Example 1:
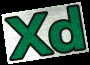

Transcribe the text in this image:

Xd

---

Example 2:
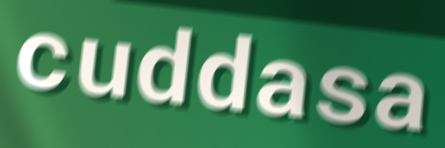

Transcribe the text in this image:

cuddasa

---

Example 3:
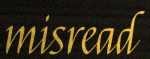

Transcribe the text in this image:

misread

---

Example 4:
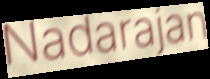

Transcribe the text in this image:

Nadarajan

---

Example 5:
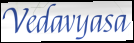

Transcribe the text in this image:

Vedavyasa